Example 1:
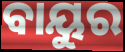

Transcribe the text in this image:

ବାୟୁର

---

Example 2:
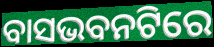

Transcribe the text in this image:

ବାସଭବନଟିରେ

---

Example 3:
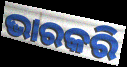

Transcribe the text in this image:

ଭାରକରି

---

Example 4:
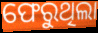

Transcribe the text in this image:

ଫେରୁଥିଲା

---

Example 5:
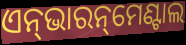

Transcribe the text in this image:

ଏନ୍‌ଭାରନ୍‌ମେଣ୍ଟାଲ